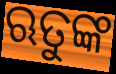
ଋତୁଙ୍କ